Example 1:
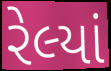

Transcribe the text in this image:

રેલ્યાં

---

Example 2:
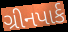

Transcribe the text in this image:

ગ્રીનપાર્ક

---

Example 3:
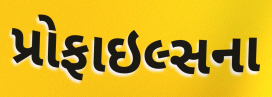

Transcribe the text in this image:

પ્રોફાઇલ્સના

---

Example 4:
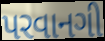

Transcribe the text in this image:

પરવાનગી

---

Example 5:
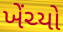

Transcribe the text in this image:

ખેંચ્યો